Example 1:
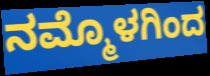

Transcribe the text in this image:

ನಮ್ಮೊಳಗಿಂದ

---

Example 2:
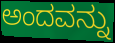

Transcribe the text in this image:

ಅಂದವನ್ನು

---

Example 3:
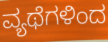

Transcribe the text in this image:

ವ್ಯಥೆಗಳಿಂದ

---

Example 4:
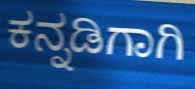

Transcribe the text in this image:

ಕನ್ನಡಿಗಾಗಿ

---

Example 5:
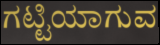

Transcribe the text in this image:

ಗಟ್ಟಿಯಾಗುವ